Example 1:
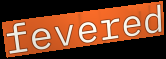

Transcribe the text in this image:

fevered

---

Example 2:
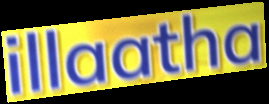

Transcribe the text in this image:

illaatha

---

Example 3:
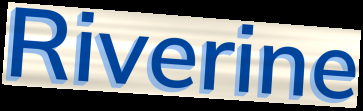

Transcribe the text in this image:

Riverine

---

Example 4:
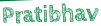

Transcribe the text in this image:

Pratibhav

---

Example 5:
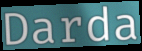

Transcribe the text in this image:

Darda